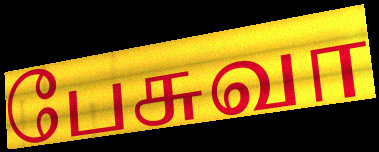
பேசுவா